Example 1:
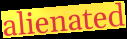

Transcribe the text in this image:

alienated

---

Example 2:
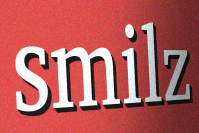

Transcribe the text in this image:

smilz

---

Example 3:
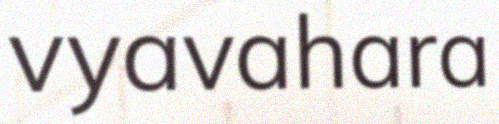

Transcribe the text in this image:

vyavahara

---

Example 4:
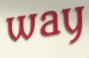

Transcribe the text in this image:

way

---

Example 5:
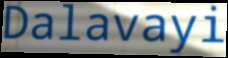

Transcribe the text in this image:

Dalavayi